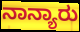
ನಾನ್ಯಾರು